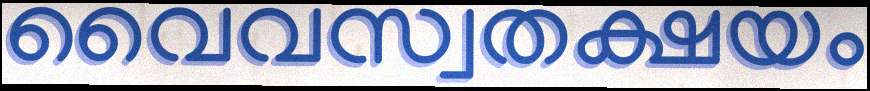
വൈവസ്വതക്ഷയം